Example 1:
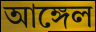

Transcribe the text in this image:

আঙ্গেল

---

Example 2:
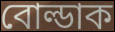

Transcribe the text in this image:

বোল্ডাক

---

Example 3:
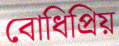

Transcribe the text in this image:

বোধিপ্রিয়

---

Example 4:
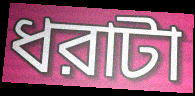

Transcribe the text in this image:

ধরাটা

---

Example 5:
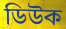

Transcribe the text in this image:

ডিউক